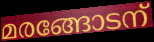
മരങ്ങോടന്